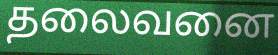
தலைவனை